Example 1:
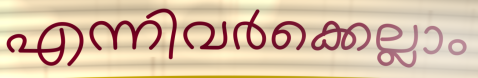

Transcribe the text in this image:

എന്നിവർക്കെല്ലാം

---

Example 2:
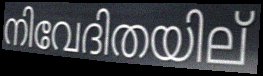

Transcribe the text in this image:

നിവേദിതയില്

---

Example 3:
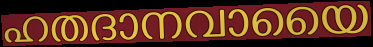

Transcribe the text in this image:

ഹതദാനവായൈ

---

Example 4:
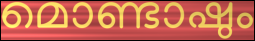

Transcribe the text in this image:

മൊണ്ടാഷും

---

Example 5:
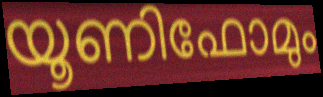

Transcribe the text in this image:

യൂണിഫോമും